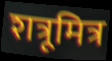
शत्रूमित्र